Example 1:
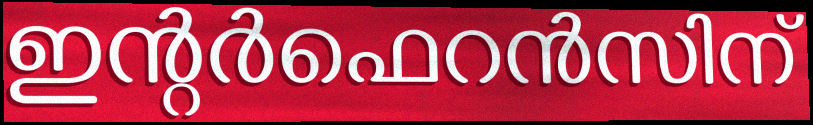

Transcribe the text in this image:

ഇന്റർഫെറൻസിന്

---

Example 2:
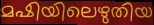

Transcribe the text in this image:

മഷിയിലെഴുതിയ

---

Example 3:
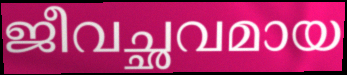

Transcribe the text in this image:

ജീവച്ഛവമായ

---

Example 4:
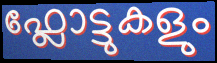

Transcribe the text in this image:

ഫ്ലോട്ടുകളും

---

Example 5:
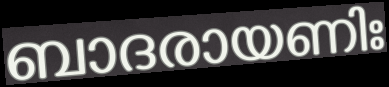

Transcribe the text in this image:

ബാദരായണിഃ